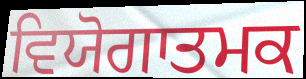
ਵਿਯੋਗਾਤਮਕ